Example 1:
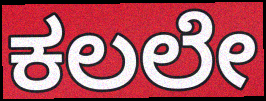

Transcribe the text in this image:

ಕಲಲೇ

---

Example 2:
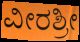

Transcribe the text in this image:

ವೀರಶ್ರೀ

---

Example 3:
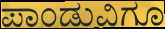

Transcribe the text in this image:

ಪಾಂಡುವಿಗೂ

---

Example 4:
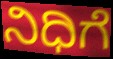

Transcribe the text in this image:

ನಿಧಿಗೆ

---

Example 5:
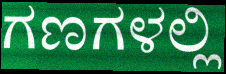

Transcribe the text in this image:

ಗಣಗಳಲ್ಲಿ